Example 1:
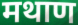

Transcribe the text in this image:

मथाण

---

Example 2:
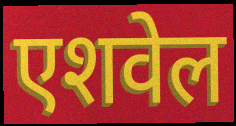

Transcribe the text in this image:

एशवेल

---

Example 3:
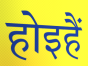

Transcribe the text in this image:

होइहैं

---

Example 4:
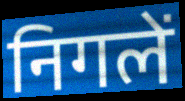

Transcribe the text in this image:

निगलें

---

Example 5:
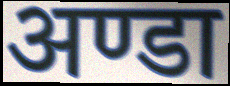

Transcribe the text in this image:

अण्डा